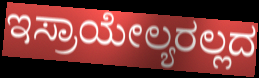
ಇಸ್ರಾಯೇಲ್ಯರಲ್ಲದ